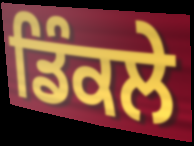
ਡਿੰਕਲੇ